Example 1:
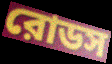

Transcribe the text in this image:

রোডস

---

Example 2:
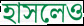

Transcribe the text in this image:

হাসলেও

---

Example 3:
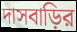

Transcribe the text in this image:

দাসবাড়ির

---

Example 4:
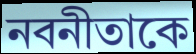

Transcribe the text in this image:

নবনীতাকে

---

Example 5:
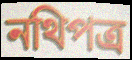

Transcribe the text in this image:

নথিপত্র